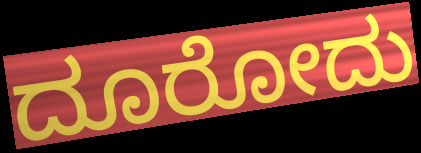
ದೂರೋದು